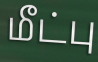
மீட்பு